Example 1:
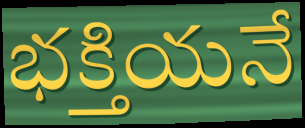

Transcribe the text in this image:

భక్తియనే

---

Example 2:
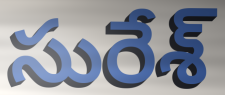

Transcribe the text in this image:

సురేశ్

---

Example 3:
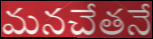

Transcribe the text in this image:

మనచేతనే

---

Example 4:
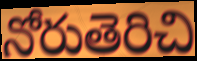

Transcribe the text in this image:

నోరుతెరిచి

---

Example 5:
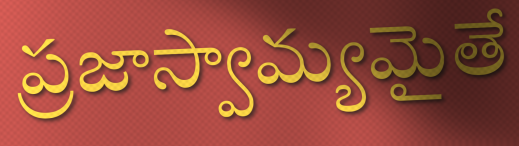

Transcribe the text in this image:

ప్రజాస్వామ్యమైతే